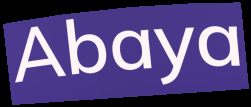
Abaya